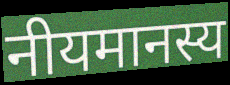
नीयमानस्य